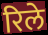
रिले